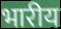
भारीय